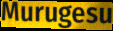
Murugesu